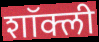
शॉक्ली